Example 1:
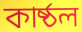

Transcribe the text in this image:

কাষ্ঠল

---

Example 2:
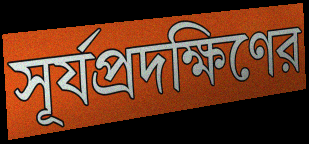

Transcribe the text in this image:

সূর্যপ্রদক্ষিণের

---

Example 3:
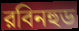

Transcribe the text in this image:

রবিনহুড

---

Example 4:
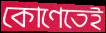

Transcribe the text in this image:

কোণেতেই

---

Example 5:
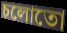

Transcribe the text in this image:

চলোতো